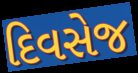
દિવસેજ